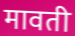
मावती